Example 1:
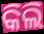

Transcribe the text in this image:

କିଲି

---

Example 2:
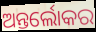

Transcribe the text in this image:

ଅନ୍ତର୍ଲୋକର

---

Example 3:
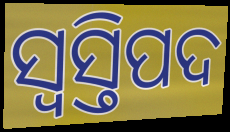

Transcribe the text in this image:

ସ୍ବସ୍ତିପଦ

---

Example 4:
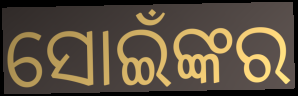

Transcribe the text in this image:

ସୋଇଁଙ୍କର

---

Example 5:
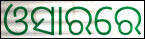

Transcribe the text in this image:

ଓସାରରେ